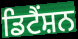
ਡਿਟੈਂਸ਼ਨ